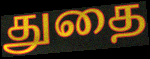
துதை